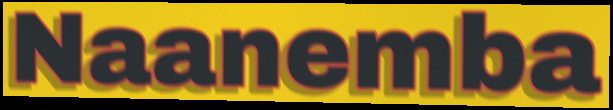
Naanemba